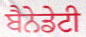
ਬੈਨੇਡੇਟੀ